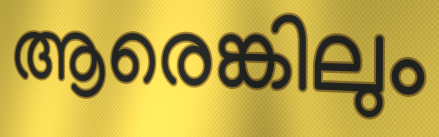
ആരെങ്കിലും